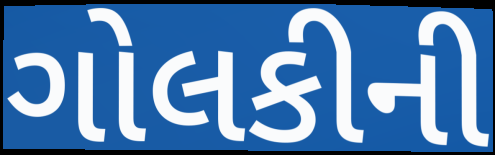
ગોલકીની